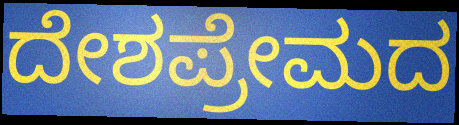
ದೇಶಪ್ರೇಮದ